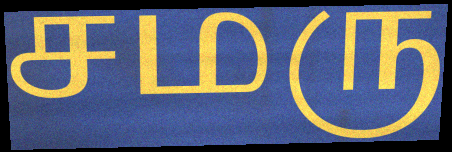
சமரு